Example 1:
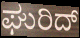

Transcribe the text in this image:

ಘುರಿದ್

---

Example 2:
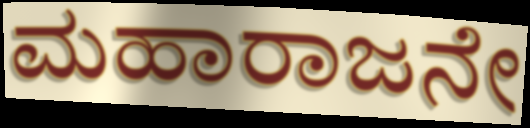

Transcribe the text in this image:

ಮಹಾರಾಜನೇ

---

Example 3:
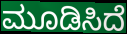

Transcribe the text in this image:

ಮೂಡಿಸಿದೆ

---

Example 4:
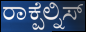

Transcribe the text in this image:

ರಾಕ್ಪೆಲ್ನಿಸ್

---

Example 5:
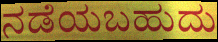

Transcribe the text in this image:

ನಡೆಯಬಹುದು